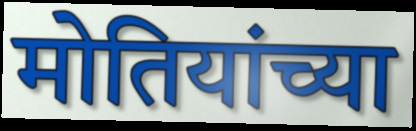
मोतियांच्या